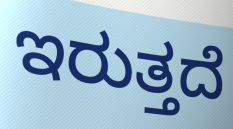
ಇರುತ್ತದೆ